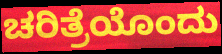
ಚರಿತ್ರೆಯೊಂದು